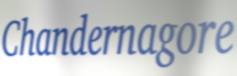
Chandernagore